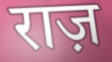
राज़